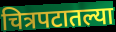
चित्रपटातल्या